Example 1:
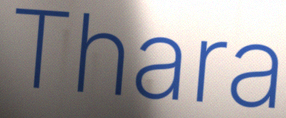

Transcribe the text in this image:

Thara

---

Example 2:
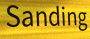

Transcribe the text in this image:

Sanding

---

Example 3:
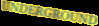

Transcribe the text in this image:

UNDERGROUND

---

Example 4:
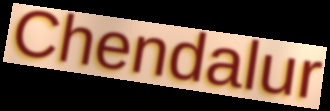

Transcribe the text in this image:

Chendalur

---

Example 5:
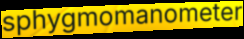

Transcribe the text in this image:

sphygmomanometer